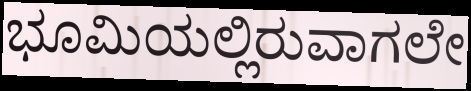
ಭೂಮಿಯಲ್ಲಿರುವಾಗಲೇ